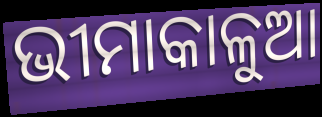
ଭୀମାକାଳୁଆ